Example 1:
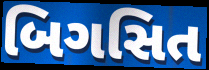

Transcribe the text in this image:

બિગસિત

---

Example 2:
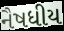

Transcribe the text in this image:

નૈષધીય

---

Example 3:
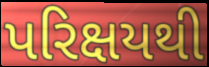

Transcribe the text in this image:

પરિક્ષયથી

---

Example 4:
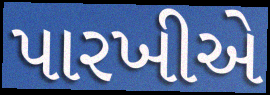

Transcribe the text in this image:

પારખીએ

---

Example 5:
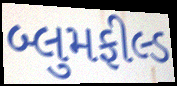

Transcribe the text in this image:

બ્લુમફીલ્ડ